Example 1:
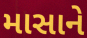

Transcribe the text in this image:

માસાને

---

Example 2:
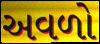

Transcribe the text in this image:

અવળો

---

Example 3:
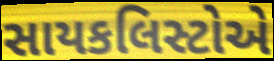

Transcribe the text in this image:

સાયકલિસ્ટોએ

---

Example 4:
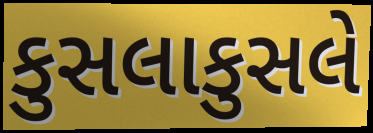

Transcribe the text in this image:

કુસલાકુસલે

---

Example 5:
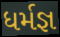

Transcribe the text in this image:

ધર્મજ્ઞ